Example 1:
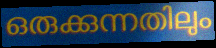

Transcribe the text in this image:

ഒരുക്കുന്നതിലും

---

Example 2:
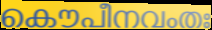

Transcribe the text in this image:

കൌപീനവംതഃ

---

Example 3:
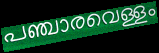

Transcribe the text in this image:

പഞ്ചാരവെള്ളം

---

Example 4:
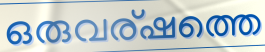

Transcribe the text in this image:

ഒരുവര്ഷത്തെ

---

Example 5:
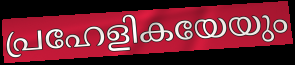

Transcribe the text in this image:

പ്രഹേളികയേയും